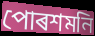
পোৰশমনি